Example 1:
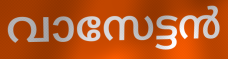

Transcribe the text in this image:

വാസേട്ടൻ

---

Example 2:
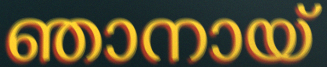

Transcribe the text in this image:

ഞാനായ്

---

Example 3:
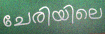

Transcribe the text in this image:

ചേരിയിലെ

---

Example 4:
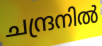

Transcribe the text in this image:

ചന്ദ്രനിൽ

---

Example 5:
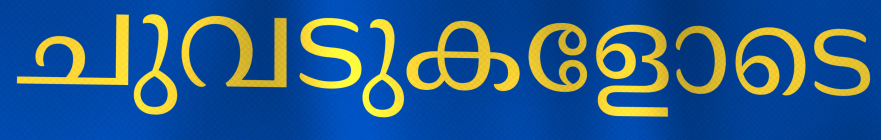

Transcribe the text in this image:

ചുവടുകളോടെ